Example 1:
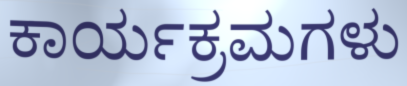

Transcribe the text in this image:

ಕಾರ್ಯಕ್ರಮಗಳು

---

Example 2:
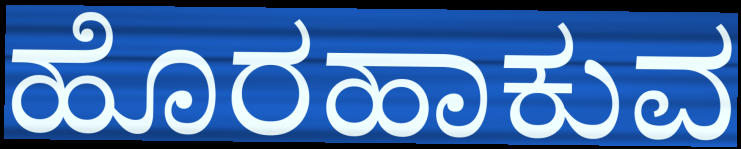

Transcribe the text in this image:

ಹೊರಹಾಕುವ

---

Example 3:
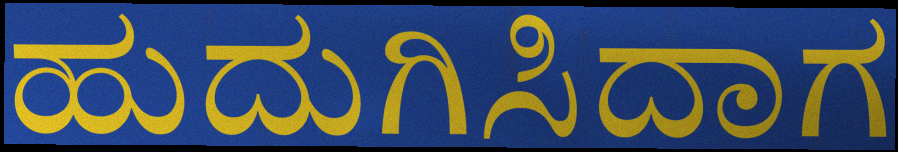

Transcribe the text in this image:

ಹುದುಗಿಸಿದಾಗ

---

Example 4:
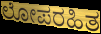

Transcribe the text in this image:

ಲೋಪರಹಿತ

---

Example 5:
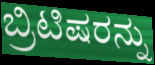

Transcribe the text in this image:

ಬ್ರಿಟಿಷರನ್ನು